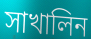
সাখালিন